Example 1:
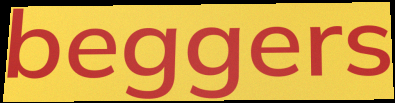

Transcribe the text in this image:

beggers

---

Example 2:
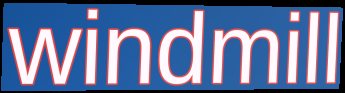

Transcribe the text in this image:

windmill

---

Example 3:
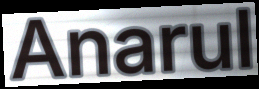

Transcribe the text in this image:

Anarul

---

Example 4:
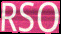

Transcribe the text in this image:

RSO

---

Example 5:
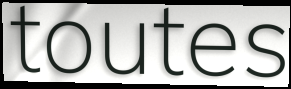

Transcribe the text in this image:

toutes